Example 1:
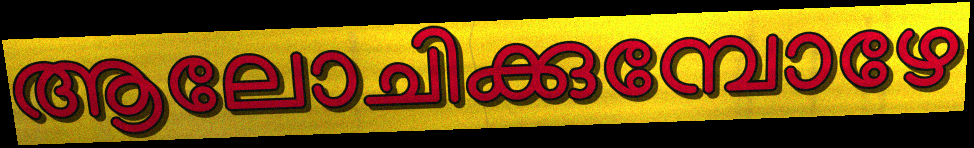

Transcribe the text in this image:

ആലോചിക്കുമ്പോഴേ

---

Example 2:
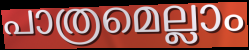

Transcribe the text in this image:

പാത്രമെല്ലാം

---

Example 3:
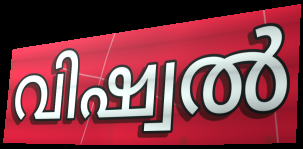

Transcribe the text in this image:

വിഷ്വൽ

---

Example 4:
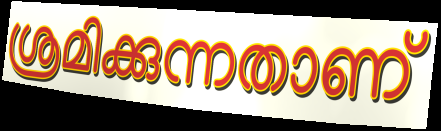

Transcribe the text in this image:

ശ്രമിക്കുന്നതാണ്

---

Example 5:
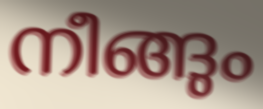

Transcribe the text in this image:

നീങ്ങും